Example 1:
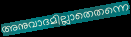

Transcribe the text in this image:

അനുവാദമില്ലാതെതന്നെ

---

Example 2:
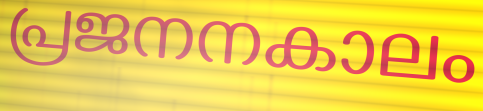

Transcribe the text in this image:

പ്രജനനകാലം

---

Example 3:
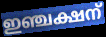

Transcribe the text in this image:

ഇഞ്ചക്ഷന്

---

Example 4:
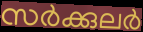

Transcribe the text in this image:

സർക്കുലർ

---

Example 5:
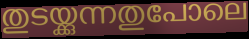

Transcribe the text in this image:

തുടയ്ക്കുന്നതുപോലെ